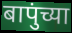
बापुंच्या